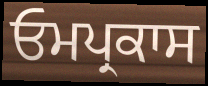
ਓਮਪ੍ਰਕਾਸ